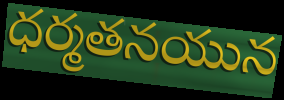
ధర్మతనయున